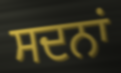
ਸਦਨਾਂ